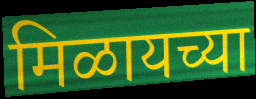
मिळायच्या